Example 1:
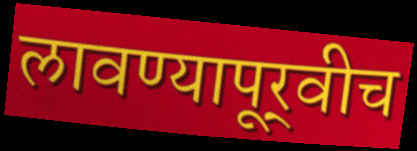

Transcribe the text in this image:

लावण्यापूर्वीच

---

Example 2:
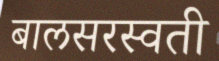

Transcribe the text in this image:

बालसरस्वती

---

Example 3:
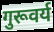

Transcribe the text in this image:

गुरूवर्य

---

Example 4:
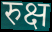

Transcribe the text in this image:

रुक्ष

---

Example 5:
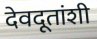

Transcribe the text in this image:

देवदूतांशी